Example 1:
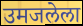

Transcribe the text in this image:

उमजलेला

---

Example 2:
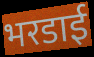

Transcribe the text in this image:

भरडाई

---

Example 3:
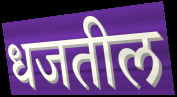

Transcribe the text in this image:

धजतील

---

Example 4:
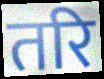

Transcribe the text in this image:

तरि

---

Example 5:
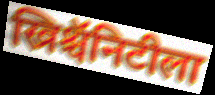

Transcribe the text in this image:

ख्रिश्चॅनिटीला